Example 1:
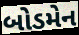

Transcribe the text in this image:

બોડમેન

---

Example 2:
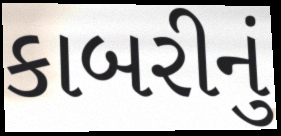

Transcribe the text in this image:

કાબરીનું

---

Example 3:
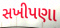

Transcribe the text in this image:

સખીપણા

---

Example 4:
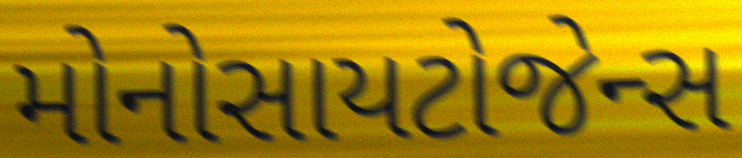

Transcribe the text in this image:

મોનોસાયટોજેન્સ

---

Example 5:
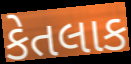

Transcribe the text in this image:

કેતલાક